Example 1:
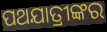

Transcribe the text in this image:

ପଥଯାତ୍ରୀଙ୍କର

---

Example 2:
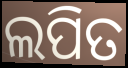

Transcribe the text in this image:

ଲପିତ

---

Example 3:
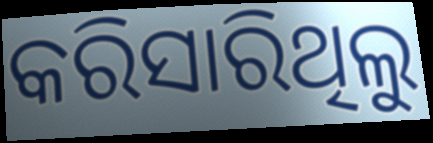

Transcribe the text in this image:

କରିସାରିଥିଲୁ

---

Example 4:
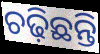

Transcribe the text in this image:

ଚଢ଼ିଛନ୍ତି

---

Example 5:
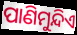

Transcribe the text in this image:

ପାଣିମୁନ୍ଦିଏ